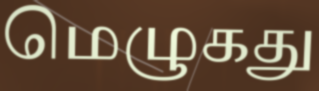
மெழுகது